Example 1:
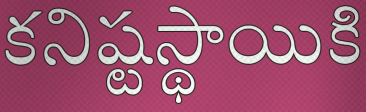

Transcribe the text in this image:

కనిష్టస్థాయికి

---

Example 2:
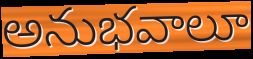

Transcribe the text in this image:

అనుభవాలూ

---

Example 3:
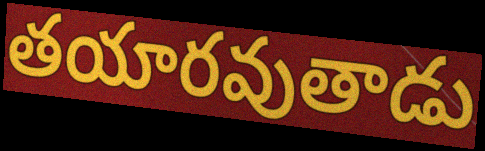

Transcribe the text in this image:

తయారవుతాడు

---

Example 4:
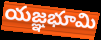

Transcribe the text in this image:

యజ్ఞభూమి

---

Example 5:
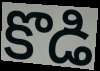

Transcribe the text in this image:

కొడి